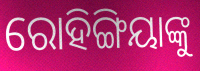
ରୋହିଙ୍ଗିୟାଙ୍କୁ